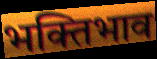
भक्तिभाव